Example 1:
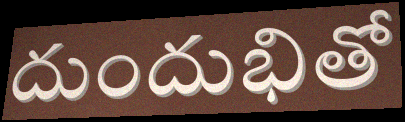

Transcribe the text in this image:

దుందుభితో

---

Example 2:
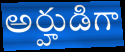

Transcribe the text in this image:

అర్హుడిగా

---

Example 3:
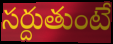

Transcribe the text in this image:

సర్దుతుంటే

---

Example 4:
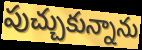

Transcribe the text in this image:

పుచ్చుకున్నాను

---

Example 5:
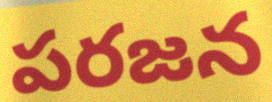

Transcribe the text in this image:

పరజన